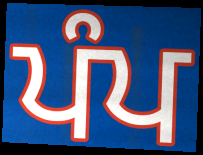
ਪੰਪ